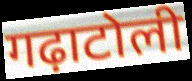
गढ़ाटोली